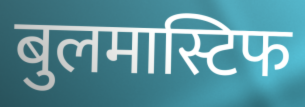
बुलमास्टिफ